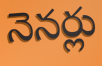
నెనర్లు